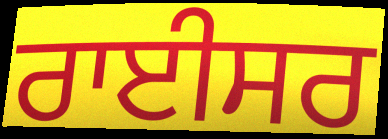
ਰਾਈਸਰ